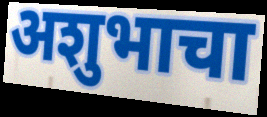
अशुभाचा